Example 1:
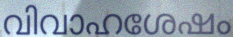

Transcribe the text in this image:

വിവാഹശേഷം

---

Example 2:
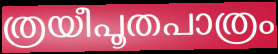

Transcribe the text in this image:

ത്രയീപൂതപാത്രം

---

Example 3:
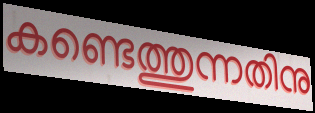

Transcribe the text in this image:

കണ്ടെത്തുന്നതിനു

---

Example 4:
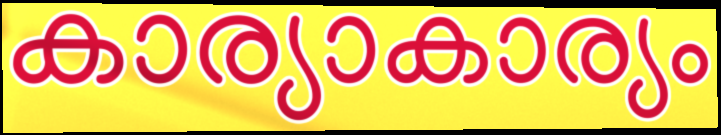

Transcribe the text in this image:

കാര്യാകാര്യം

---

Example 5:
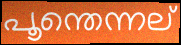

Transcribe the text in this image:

പൂന്തെന്നല്